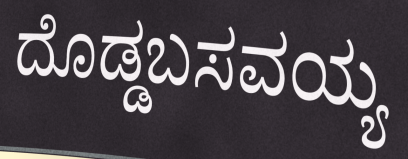
ದೊಡ್ಡಬಸವಯ್ಯ